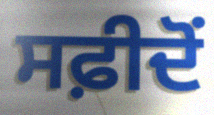
ਸਫ਼ੀਦੋਂ